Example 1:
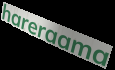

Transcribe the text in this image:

hareraama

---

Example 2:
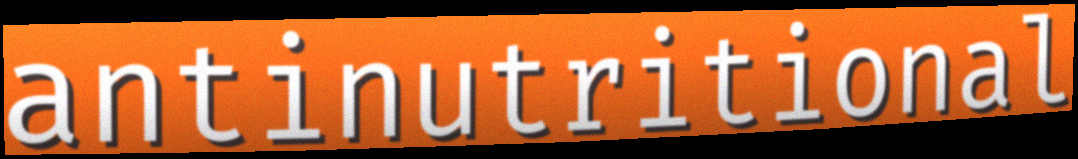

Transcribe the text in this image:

antinutritional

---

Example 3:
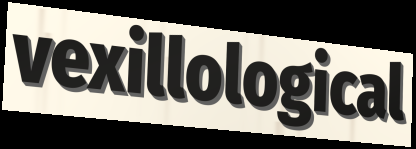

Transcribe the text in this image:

vexillological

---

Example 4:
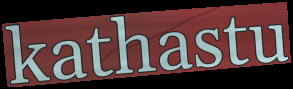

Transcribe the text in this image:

kathastu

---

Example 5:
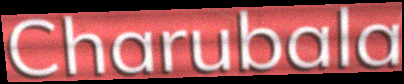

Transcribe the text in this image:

Charubala